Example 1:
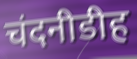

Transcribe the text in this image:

चंदनीडीह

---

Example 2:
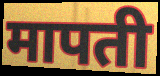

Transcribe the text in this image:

मापती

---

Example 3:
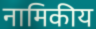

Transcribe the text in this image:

नामिकीय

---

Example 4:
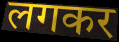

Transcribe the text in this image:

लगकर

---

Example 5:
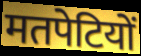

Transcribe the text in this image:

मतपेटियों